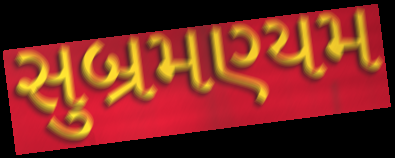
સુબ્રમણ્યમ